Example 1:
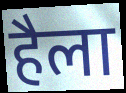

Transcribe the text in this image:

हैला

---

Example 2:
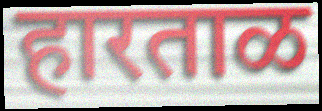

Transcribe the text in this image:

हारताळ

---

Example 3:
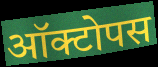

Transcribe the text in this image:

ऑक्टोपस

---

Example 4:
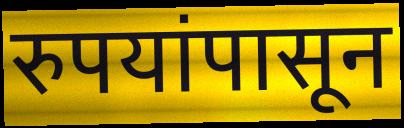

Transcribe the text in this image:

रुपयांपासून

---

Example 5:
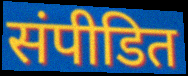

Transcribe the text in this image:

संपीडित